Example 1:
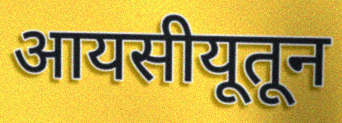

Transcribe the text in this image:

आयसीयूतून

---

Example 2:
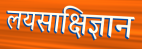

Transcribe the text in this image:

लयसाक्षिज्ञान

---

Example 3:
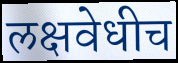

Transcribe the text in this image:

लक्षवेधीच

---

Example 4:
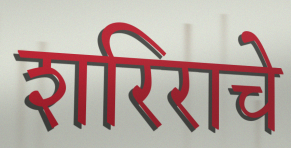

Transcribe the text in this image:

शरिराचे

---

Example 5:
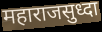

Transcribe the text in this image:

महाराजसुध्दा